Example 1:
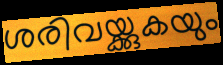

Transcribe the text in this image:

ശരിവയ്ക്കുകയും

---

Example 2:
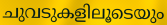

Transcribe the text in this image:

ചുവടുകളിലൂടെയും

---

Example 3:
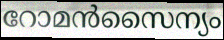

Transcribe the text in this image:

റോമൻസൈന്യം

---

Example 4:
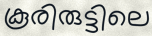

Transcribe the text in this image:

കൂരിരുട്ടിലെ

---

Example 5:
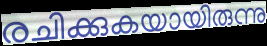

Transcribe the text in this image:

രചിക്കുകയായിരുന്നു